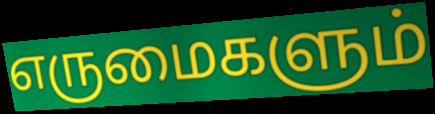
எருமைகளும்